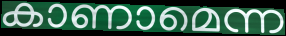
കാണാമെന്ന